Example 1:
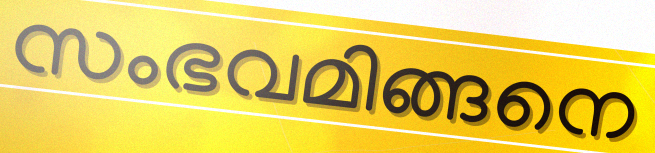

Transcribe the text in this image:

സംഭവമിങ്ങനെ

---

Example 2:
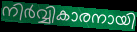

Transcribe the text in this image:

നിർവ്വികാരനായി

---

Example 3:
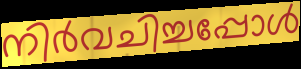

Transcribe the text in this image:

നിർവചിച്ചപ്പോൾ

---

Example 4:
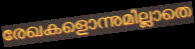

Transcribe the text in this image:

രേഖകളൊന്നുമില്ലാതെ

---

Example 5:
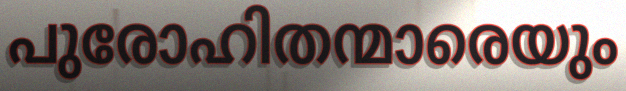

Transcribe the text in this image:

പുരോഹിതന്മാരെയും